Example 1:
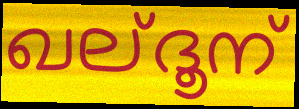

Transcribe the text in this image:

ഖല്ദൂന്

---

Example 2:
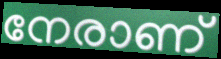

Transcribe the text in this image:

നേരാണ്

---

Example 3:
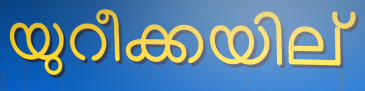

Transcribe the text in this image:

യുറീക്കയില്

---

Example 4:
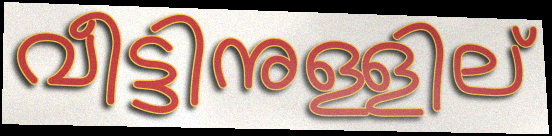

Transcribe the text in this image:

വീട്ടിനുള്ളില്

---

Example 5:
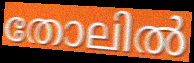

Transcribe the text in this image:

തോലിൽ